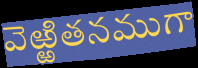
వెఱ్ఱితనముగా